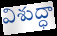
విశుద్ధా